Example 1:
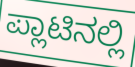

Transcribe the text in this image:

ಪ್ಲಾಟಿನಲ್ಲಿ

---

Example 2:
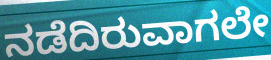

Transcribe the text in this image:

ನಡೆದಿರುವಾಗಲೇ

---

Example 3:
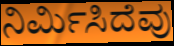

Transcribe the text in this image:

ನಿರ್ಮಿಸಿದೆವು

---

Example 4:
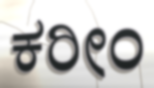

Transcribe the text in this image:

ಕರೀಂ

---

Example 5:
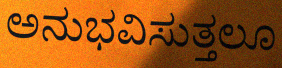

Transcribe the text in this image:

ಅನುಭವಿಸುತ್ತಲೂ